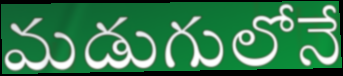
మడుగులోనే